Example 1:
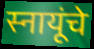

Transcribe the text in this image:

स्नायूंचे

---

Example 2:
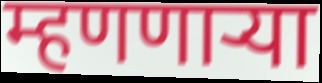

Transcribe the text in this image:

म्हणणार्‍या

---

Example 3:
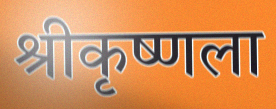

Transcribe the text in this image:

श्रीकृष्णला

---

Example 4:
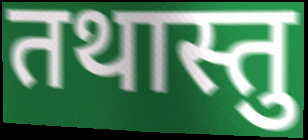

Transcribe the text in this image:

तथास्तु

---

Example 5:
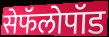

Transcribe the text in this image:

सेफॅलोपॉड